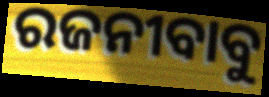
ରଜନୀବାବୁ